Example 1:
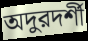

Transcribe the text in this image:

অদুরদর্শী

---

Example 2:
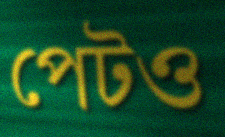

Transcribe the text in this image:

পেটও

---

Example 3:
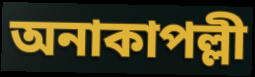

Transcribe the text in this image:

অনাকাপল্লী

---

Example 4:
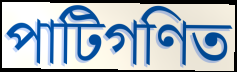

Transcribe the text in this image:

পাটিগণিত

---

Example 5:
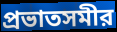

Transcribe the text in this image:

প্রভাতসমীর